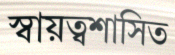
স্বায়ত্বশাসিত